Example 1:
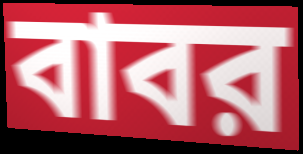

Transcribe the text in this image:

বাবর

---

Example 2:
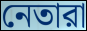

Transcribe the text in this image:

নেতারা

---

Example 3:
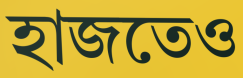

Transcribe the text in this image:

হাজতেও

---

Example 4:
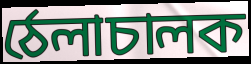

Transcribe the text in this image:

ঠেলাচালক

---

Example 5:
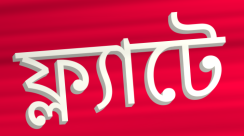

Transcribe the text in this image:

ফ্ল্যাটে